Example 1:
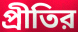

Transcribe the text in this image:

প্রীতির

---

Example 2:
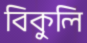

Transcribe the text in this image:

বিকুলি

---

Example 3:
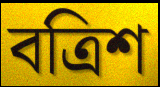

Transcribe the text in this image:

বত্রিশ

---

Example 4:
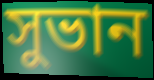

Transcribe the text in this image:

সুভান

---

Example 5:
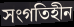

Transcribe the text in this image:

সংগতিহীন